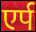
एर्प